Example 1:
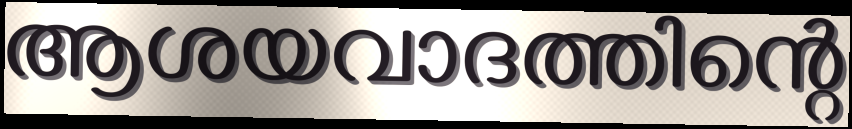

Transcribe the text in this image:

ആശയവാദത്തിന്റെ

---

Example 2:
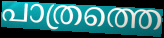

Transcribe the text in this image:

പാത്രത്തെ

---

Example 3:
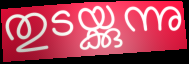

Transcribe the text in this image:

തുടയ്ക്കുന്നു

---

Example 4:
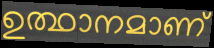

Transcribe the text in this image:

ഉത്ഥാനമാണ്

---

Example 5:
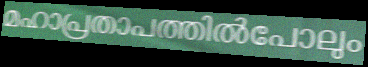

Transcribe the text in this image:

മഹാപ്രതാപത്തിൽപോലും